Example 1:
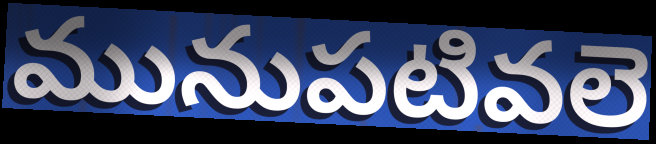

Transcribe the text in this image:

మునుపటివలె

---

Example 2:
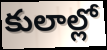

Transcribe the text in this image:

కులాల్లో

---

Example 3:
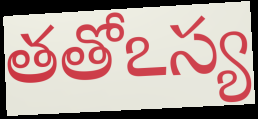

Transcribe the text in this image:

తతోఽస్య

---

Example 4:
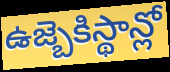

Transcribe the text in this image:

ఉజ్బెకిస్థాన్లో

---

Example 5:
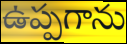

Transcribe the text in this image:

ఉప్పగాను